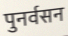
पुनर्वसन